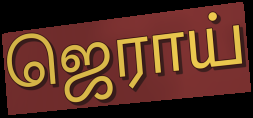
ஜெராய்